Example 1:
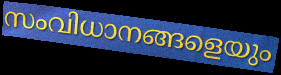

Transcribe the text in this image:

സംവിധാനങ്ങളെയും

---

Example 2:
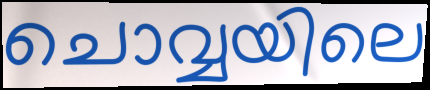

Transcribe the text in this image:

ചൊവ്വയിലെ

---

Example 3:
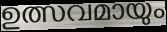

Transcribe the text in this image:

ഉത്സവമായും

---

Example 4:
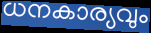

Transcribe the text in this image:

ധനകാര്യവും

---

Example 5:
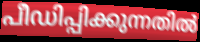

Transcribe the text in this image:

പീഡിപ്പിക്കുന്നതിൽ